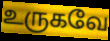
உருகவே